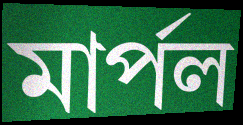
মার্পল